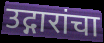
उद्गारांचा